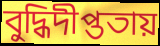
বুদ্ধিদীপ্ততায়